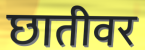
छातीवर